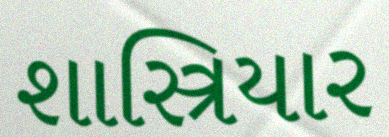
શાસ્ત્રિયાર